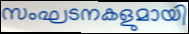
സംഘടനകളുമായി